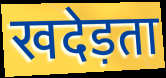
खदेड़ता